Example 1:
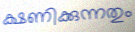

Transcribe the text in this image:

ക്ഷണിക്കുന്നതും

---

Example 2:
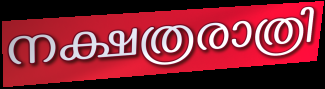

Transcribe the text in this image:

നക്ഷത്രരാത്രി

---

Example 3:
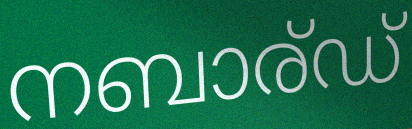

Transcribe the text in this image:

നബാര്ഡ്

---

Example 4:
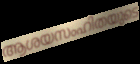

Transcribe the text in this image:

ആശയസംഹിതയുടെ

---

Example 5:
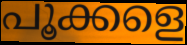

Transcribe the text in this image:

പൂക്കളെ